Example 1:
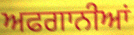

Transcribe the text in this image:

ਅਫਗਾਨੀਆਂ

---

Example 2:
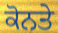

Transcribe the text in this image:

ਕੋਨਤੇ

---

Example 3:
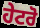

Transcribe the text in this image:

ਹੇਟਰੋ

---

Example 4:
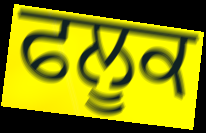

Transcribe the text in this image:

ਫਲੂਕ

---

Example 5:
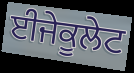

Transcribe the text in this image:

ਈਜੇਕੂਲੇਟ